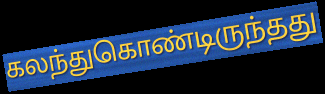
கலந்துகொண்டிருந்தது